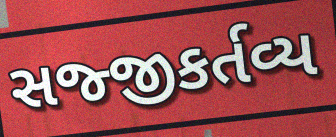
સજ્જીકર્તવ્ય